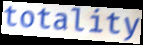
totality